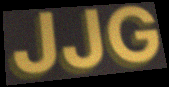
JJG